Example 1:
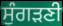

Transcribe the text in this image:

ਸੁੰਗੜਣੀ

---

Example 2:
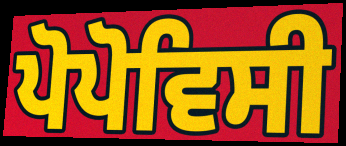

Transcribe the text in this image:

ਪੋਪੋਵਿਸੀ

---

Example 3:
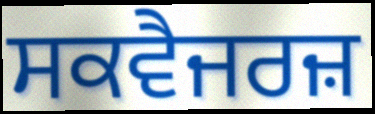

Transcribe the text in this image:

ਸਕਵੈਜਰਜ਼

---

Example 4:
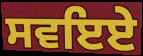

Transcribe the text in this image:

ਸਵਇਏ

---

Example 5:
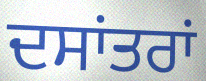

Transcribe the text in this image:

ਦਸਾਂਤਰਾਂ